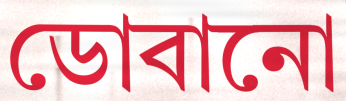
ডোবানো